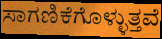
ಸಾಗಣಿಕೆಗೊಳ್ಳುತ್ತವೆ